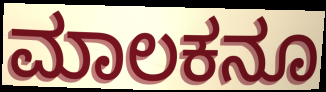
ಮಾಲಕನೂ